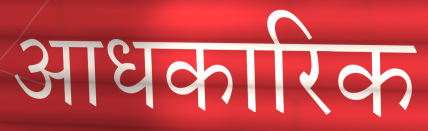
आधकारिक